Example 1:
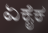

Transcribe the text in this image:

ಏಕೈಕ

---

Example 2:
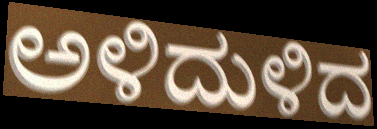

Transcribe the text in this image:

ಅಳಿದುಳಿದ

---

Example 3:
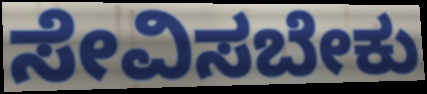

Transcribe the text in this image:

ಸೇವಿಸಬೇಕು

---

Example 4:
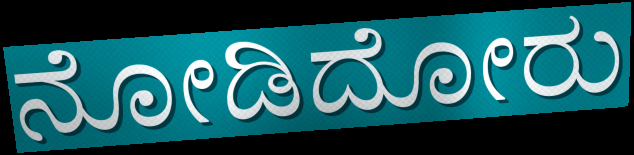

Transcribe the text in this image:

ನೋಡಿದೋರು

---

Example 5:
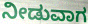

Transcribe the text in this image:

ನೀಡುವಾಗ